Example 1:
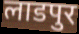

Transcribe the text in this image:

लाडपुर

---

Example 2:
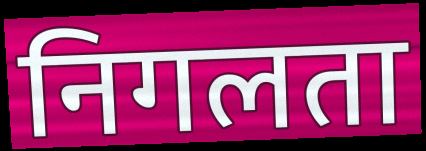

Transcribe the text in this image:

निगलता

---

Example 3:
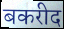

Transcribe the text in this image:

बकरीद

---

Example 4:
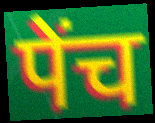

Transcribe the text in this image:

पेंच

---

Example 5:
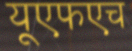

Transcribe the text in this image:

यूएफएच